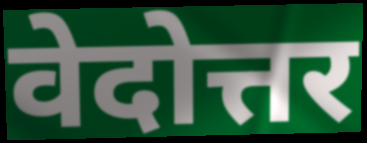
वेदोत्तर